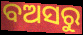
ବଅସରୁ